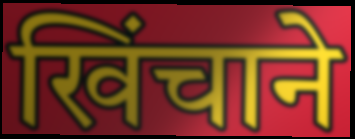
खिंचाने